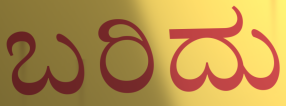
ಬರಿದು